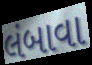
લંબાવા